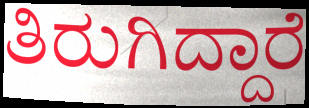
ತಿರುಗಿದ್ದಾರೆ